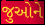
જુઓને